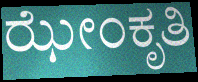
ಝೇಂಕೃತಿ